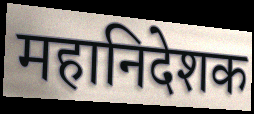
महानिदेशक